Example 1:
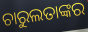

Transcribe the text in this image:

ଚାରୁଲତାଙ୍କର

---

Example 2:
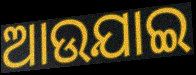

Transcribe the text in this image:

ଆଉଯାଇ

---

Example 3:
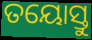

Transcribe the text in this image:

ତୟୋସ୍ତୁ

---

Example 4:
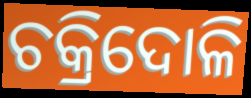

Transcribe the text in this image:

ଚକ୍ରିଦୋଳି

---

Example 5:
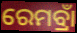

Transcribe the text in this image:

ରେମବ୍ରାଁ